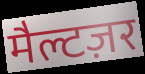
मैल्टज़र